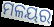
ମଳୟର